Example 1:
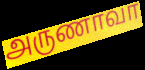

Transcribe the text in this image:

அருணாவா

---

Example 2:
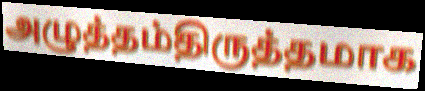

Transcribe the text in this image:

அழுத்தம்திருத்தமாக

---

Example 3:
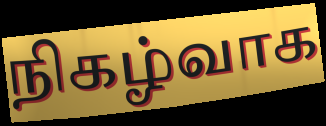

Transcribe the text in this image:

நிகழ்வாக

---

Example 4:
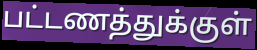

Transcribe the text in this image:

பட்டணத்துக்குள்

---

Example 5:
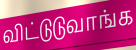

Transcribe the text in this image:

விட்டுடுவாங்க